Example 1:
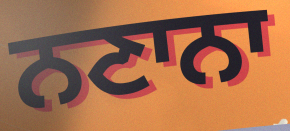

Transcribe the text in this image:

ਨਣਾਨਾ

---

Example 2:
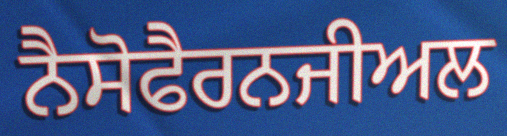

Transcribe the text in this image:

ਨੈਸੋਫੈਰਨਜੀਅਲ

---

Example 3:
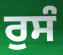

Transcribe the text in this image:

ਰੁਸੰ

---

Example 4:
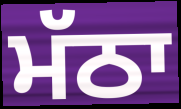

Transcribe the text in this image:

ਮੱਠਾ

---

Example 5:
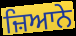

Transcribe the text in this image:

ਜ਼ਿਆਨੇ